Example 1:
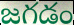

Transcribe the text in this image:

జగడం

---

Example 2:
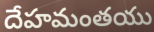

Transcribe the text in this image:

దేహమంతయు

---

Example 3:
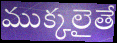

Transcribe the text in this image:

ముక్కలైతే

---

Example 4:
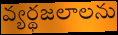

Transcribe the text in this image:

వ్యర్థజలాలను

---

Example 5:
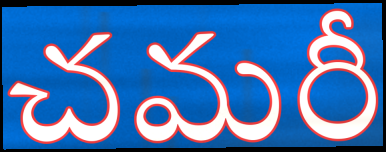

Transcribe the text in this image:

చమరీ